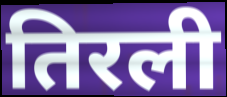
तिरली